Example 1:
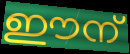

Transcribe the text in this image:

ഈന്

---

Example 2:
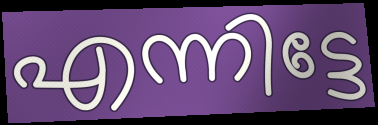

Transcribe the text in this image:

എന്നിട്ടേ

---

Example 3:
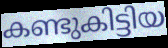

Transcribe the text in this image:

കണ്ടുകിട്ടിയ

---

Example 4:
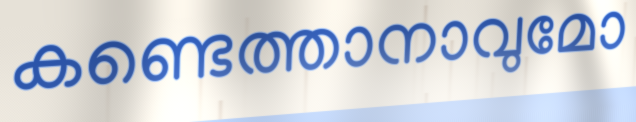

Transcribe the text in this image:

കണ്ടെത്താനാവുമോ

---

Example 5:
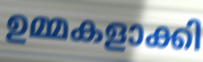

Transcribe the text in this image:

ഉമ്മകളാക്കി